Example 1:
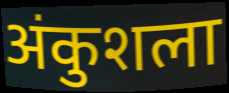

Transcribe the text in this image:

अंकुशला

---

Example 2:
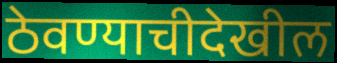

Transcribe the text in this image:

ठेवण्याचीदेखील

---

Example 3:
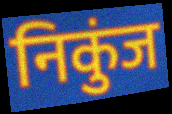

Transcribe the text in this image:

निकुंज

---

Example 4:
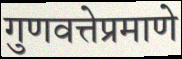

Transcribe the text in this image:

गुणवत्तेप्रमाणे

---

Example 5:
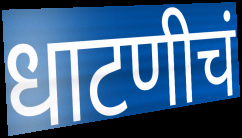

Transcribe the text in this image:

धाटणीचं